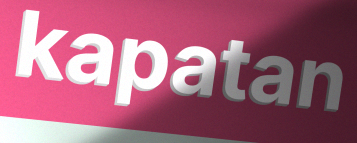
kapatan